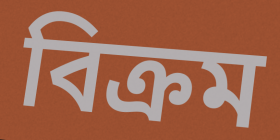
বিক্ৰম